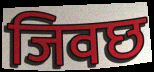
जिवछ